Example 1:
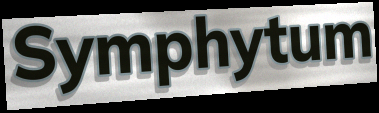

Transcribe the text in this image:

Symphytum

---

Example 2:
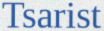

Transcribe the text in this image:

Tsarist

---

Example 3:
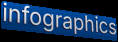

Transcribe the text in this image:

infographics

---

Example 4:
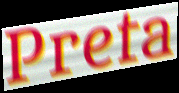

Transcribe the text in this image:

Preta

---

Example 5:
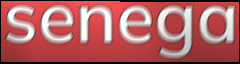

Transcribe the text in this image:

senega